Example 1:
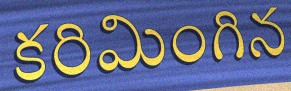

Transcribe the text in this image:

కరిమింగిన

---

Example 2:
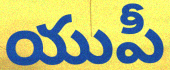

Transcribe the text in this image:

యుపీ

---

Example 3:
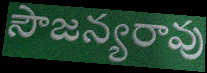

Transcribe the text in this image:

సౌజన్యరావు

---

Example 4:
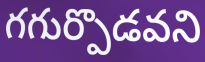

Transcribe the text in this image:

గగుర్పొడవని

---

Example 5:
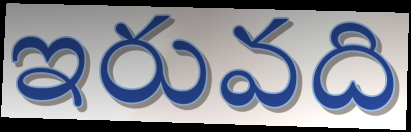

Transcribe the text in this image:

ఇరువది